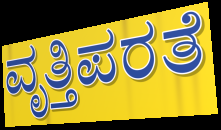
ವೃತ್ತಿಪರತೆ